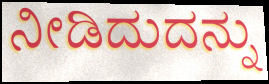
ನೀಡಿದುದನ್ನು